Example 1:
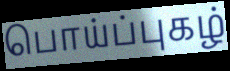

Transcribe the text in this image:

பொய்ப்புகழ்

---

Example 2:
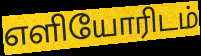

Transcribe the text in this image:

எளியோரிடம்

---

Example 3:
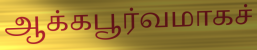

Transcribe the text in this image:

ஆக்கபூர்வமாகச்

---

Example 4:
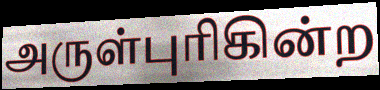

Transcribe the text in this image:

அருள்புரிகின்ற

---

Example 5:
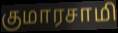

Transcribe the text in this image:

குமாரசாமி